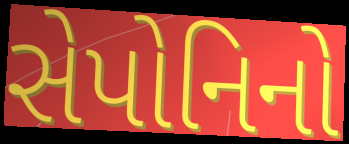
સેપોનિનો